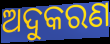
ଅଦୁକରଣ